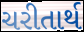
ચરીતાર્થ